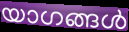
യാഗങ്ങൾ